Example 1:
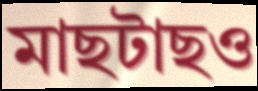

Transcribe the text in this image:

মাছটাছও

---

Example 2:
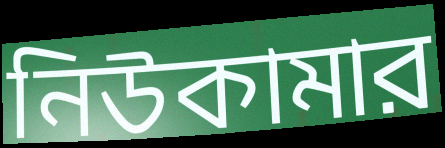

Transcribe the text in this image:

নিউকামার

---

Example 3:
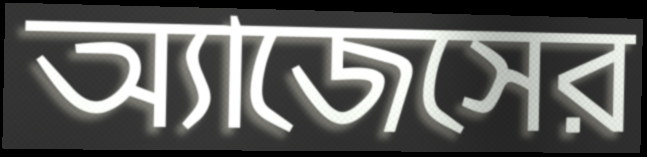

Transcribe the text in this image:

অ্যাজেসের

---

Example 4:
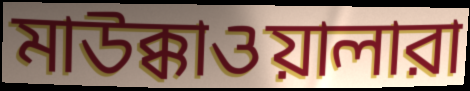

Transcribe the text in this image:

মাউক্কাওয়ালারা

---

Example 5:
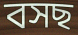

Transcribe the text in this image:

বসছ